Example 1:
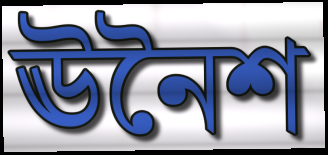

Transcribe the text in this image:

ঊনৈশ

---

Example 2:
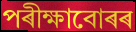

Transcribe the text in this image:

পৰীক্ষাবোৰৰ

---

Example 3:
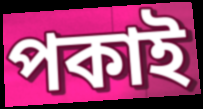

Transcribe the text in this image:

পকাই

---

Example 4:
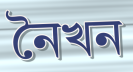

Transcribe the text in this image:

নৈখন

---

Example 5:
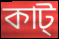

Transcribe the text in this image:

কাট্